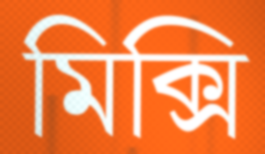
মিক্সি